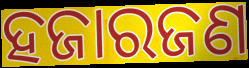
ହଜାରଜଣ